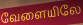
வேளையிலே